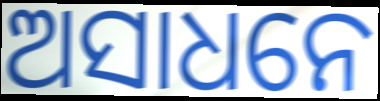
ଅସାଧନେ